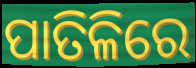
ପାତିଳିରେ